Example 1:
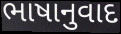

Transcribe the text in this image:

ભાષાનુવાદ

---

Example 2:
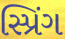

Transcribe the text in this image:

સ્પ્રિંગ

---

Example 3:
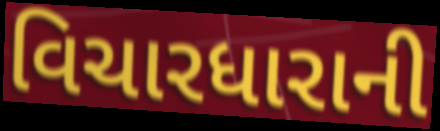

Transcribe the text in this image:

વિચારધારાની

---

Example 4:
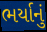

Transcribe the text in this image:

ભર્યાનું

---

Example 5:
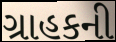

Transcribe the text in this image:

ગ્રાહકની